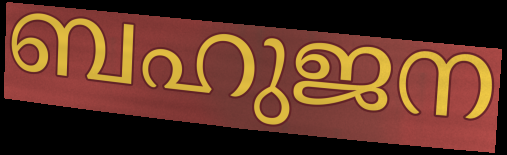
ബഹുജന